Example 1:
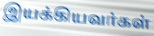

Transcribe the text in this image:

இயக்கியவர்கள்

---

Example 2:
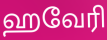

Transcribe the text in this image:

ஹவேரி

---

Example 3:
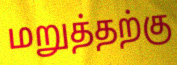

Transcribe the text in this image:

மறுத்தற்கு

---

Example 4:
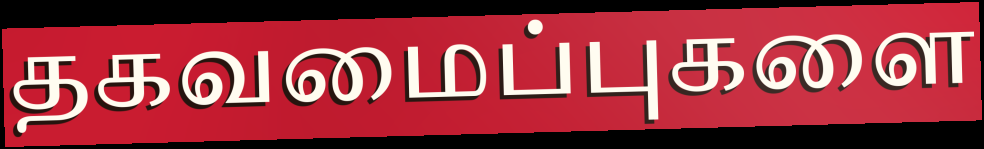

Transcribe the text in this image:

தகவமைப்புகளை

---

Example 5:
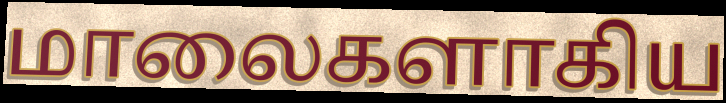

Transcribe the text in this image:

மாலைகளாகிய